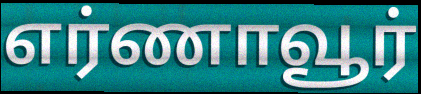
எர்ணாவூர்